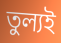
তুল্যই